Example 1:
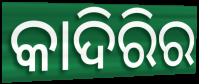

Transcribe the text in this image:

କାଦିରିର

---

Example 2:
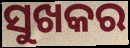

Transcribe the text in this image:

ସୁଖକର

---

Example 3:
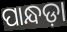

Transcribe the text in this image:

ପାନ୍ଧଡ଼ା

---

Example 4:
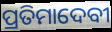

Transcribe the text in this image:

ପ୍ରତିମାଦେବୀ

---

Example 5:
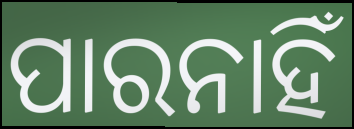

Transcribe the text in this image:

ପାରନାହିଁ